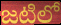
జటిలో